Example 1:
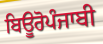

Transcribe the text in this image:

ਬਿਊਰੋਪੰਜਾਬੀ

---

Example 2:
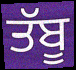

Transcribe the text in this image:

ਤੱਬੂ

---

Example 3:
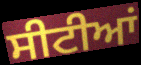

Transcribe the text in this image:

ਸੀਟੀਆਂ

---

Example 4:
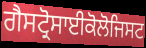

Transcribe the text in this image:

ਗੈਸਟ੍ਰੋਸਾਈਕੋਲੋਜਿਸਟ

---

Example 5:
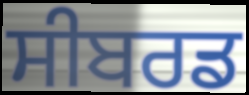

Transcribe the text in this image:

ਸੀਬਰਡ